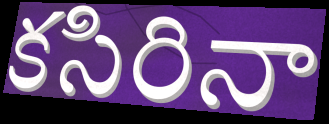
కసిరినా